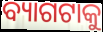
ବ୍ୟାଗଟାକୁ